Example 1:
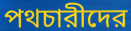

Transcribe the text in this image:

পথচারীদের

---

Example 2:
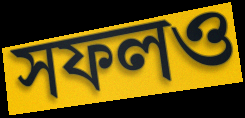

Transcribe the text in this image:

সফলও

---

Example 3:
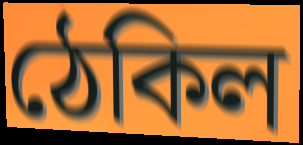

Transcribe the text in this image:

ঠেকিল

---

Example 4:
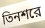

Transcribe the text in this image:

তিনশরে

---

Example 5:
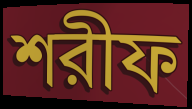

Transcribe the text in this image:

শরীফ